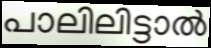
പാലിലിട്ടാൽ